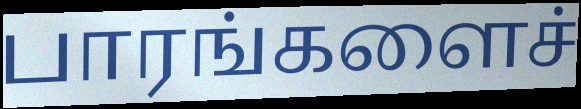
பாரங்களைச்